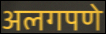
अलगपणे